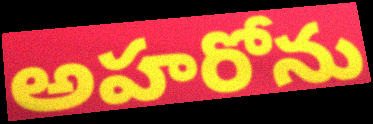
అహరోను